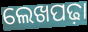
ଲେଖପଢ଼ା